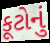
કૂટોનું